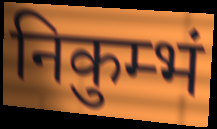
निकुम्भं